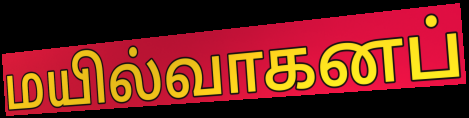
மயில்வாகனப்